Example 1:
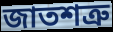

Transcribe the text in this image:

জাতশত্রু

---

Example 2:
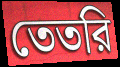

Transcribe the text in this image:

তেতরি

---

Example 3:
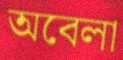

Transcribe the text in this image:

অবেলা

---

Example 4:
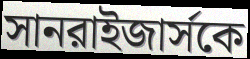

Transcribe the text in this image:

সানরাইজার্সকে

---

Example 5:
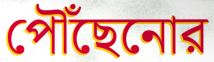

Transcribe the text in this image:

পৌঁছেনোর